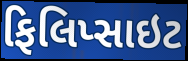
ફિલિપ્સાઇટ